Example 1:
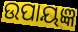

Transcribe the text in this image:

ଉପାୟଜ୍ଞ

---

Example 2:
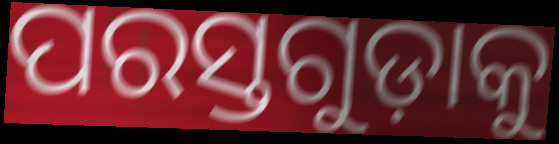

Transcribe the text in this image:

ପରସ୍ତଗୁଡ଼ାକୁ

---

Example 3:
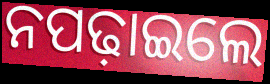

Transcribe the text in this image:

ନପଢ଼ାଇଲେ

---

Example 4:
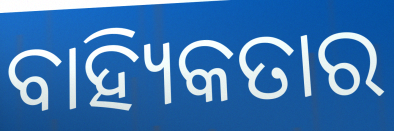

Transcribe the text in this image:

ବାହ୍ୟିକତାର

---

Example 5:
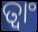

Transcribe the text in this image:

ତ୍ଵାଂ